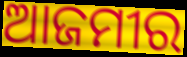
ଆଜମୀର